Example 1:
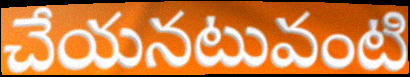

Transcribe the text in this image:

చేయనటువంటి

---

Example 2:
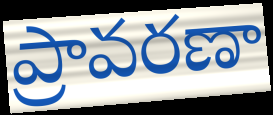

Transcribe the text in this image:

ప్రావరణా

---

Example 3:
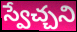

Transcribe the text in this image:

స్వేచ్చని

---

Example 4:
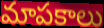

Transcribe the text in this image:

మాపకాలు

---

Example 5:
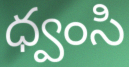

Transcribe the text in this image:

ధ్వంసి